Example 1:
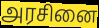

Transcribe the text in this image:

அரசினை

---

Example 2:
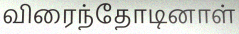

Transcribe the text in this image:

விரைந்தோடினாள்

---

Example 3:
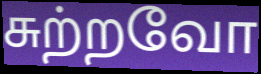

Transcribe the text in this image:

சுற்றவோ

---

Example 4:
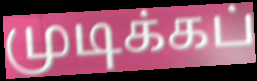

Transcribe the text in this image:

முடிக்கப்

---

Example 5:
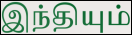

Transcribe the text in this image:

இந்தியும்